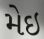
મેઇ